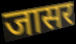
जासर